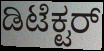
ಡಿಟೆಕ್ಟರ್